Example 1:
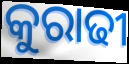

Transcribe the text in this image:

କୁରାଢୀ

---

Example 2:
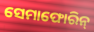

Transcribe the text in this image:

ସେମାଫୋରିନ୍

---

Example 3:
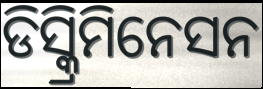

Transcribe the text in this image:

ଡିସ୍କ୍ରିମିନେସନ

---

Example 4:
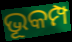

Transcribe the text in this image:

ଭୂକମ୍ପ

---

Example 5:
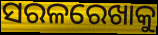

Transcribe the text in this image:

ସରଳରେଖାକୁ